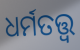
ଧର୍ମତତ୍ତ୍ଵ